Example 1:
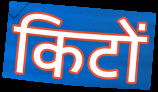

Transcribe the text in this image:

किटों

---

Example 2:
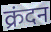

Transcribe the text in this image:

क्रंदन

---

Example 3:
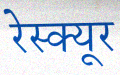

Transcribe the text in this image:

रेस्क्यूर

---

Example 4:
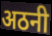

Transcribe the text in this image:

अठनी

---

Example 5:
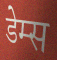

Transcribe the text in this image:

डेम्स